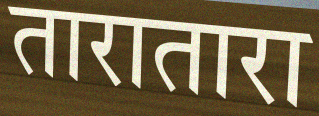
तारातारा